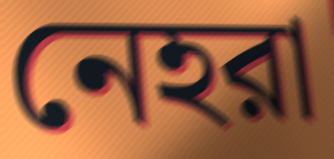
নেহরা